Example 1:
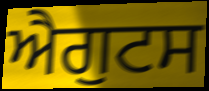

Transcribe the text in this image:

ਐਗੁਟਸ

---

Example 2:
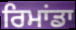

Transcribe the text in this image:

ਰਿਮਾਂਡਾ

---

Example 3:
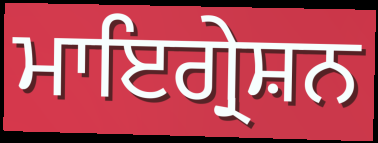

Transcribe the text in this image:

ਮਾਇਗ੍ਰੇਸ਼ਨ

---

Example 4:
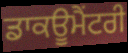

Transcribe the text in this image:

ਡਾਕਊਮੈਂਟਰੀ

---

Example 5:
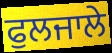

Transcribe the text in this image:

ਫੁਲਜਾਲੇ